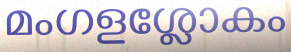
മംഗളശ്ലോകം